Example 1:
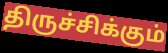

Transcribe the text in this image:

திருச்சிக்கும்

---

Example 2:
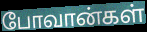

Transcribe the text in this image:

போவான்கள்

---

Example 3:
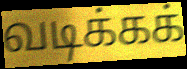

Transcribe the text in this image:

வடிக்கக்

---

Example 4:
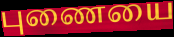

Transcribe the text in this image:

புணையை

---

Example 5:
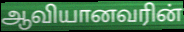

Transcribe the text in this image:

ஆவியானவரின்